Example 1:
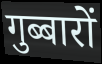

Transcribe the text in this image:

गुब्बारों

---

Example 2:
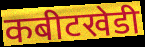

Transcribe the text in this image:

कबीटखेडी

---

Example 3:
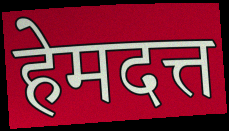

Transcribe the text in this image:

हेमदत्त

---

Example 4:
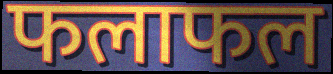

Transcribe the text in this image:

फलाफल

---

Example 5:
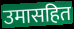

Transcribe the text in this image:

उमासहित